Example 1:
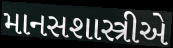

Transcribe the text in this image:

માનસશાસ્ત્રીએ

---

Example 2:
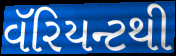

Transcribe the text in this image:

વૅરિયન્ટથી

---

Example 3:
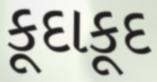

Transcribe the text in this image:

કૂદાકૂદ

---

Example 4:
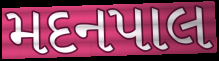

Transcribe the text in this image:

મદનપાલ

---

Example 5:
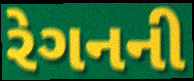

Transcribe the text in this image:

રેગનની